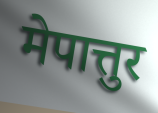
मेपात्तुर